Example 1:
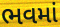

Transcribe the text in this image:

ભવમાં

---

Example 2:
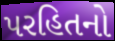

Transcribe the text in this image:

પરહિતનો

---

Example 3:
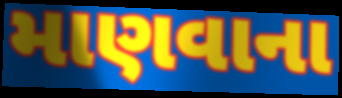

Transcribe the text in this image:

માણવાના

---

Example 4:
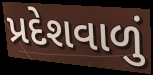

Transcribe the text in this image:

પ્રદેશવાળું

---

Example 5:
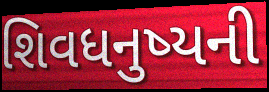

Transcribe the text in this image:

શિવધનુષ્યની